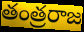
తంత్రరాజ